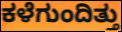
ಕಳೆಗುಂದಿತ್ತು